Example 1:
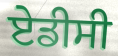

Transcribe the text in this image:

ਏਡੀਸੀ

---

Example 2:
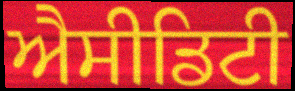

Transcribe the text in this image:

ਐਸੀਡਿਟੀ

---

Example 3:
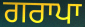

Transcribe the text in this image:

ਗਰਾਪਾ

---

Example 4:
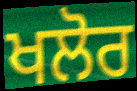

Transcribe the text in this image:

ਖਲੋਰ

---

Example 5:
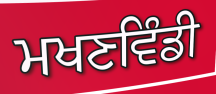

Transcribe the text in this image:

ਮਖਣਵਿੰਡੀ